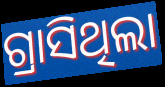
ଗ୍ରାସିଥିଲା